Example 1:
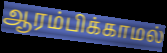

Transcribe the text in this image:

ஆரம்பிக்காமல்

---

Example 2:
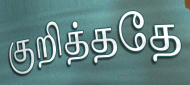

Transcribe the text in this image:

குறித்ததே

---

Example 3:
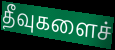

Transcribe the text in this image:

தீவுகளைச்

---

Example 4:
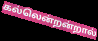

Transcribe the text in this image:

கல்லென்றன்றால்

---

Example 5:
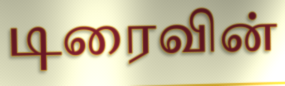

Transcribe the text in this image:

டிரைவின்